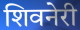
शिवनेरी